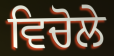
ਵਿਚੋਲੇ